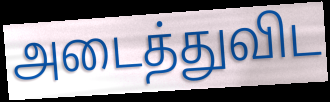
அடைத்துவிட